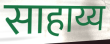
साहाय्य